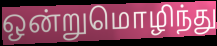
ஒன்றுமொழிந்து